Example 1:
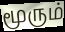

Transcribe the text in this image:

மூரும்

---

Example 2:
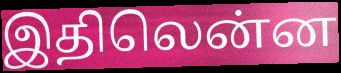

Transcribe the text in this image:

இதிலென்ன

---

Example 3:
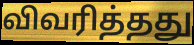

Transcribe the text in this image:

விவரித்தது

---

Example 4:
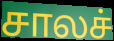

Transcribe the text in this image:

சாலச்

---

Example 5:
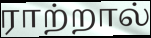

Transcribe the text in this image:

ராற்றால்